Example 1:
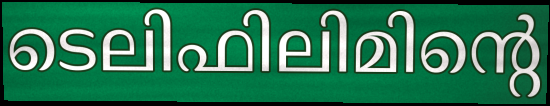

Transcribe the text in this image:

ടെലിഫിലിമിന്റെ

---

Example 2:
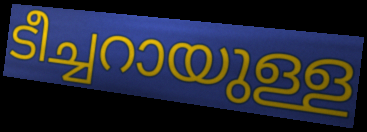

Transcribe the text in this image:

ടീച്ചറായുള്ള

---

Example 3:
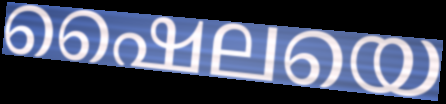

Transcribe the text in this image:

ഷൈലയെ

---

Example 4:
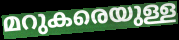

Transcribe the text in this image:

മറുകരെയുള്ള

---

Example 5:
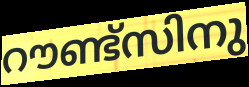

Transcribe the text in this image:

റൗണ്ട്സിനു